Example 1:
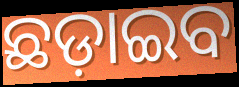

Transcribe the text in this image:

ଛଡ଼ାଇବ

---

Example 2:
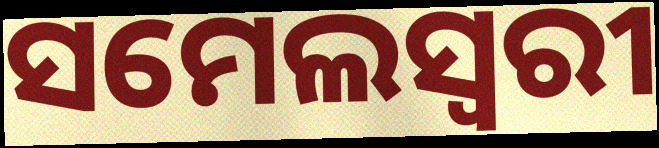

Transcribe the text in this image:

ସମେଲସ୍ୱରୀ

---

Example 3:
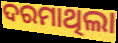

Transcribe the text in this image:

ଦରମାଥିଲା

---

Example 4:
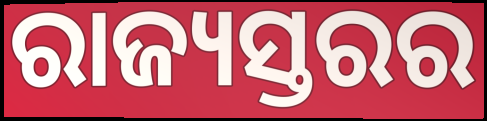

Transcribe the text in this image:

ରାଜ୍ୟସ୍ତରର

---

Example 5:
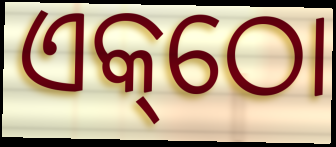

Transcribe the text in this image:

ଏକ୍‌ଠୋ